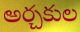
అర్చకుల